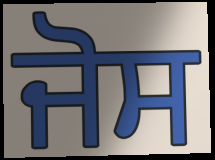
ਜੋਸ